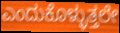
ಎಂದುಕೊಳ್ಳುತ್ತಲೇ